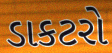
ડાકટરો